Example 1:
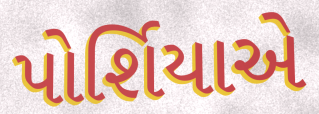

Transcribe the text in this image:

પોર્શિયાએ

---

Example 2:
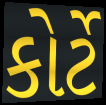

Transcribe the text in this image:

કોર્ટે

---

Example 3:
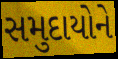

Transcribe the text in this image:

સમુદાયોને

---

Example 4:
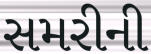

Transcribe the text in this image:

સમરીની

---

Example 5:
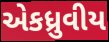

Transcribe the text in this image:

એકધ્રુવીય